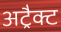
अट्रैक्ट